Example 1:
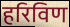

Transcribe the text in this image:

हरिविण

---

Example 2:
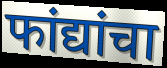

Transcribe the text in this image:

फांद्यांचा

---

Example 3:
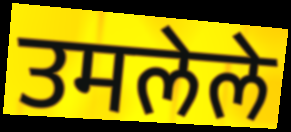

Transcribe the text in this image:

उमलेले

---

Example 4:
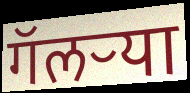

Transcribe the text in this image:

गॅलऱ्या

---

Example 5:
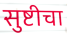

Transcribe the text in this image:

सुष्टीचा